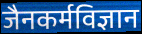
जैनकर्मविज्ञान